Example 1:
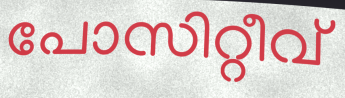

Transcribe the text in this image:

പോസിറ്റീവ്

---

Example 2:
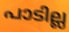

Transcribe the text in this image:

പാടില്ല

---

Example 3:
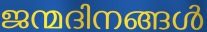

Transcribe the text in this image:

ജന്മദിനങ്ങൾ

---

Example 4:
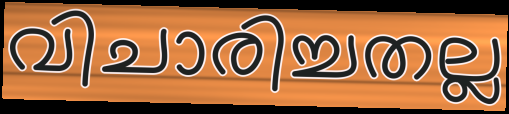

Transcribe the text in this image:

വിചാരിച്ചതല്ല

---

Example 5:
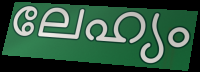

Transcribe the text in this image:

ലേഹ്യം